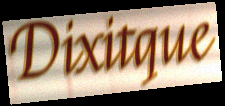
Dixitque